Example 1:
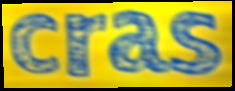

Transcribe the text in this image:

cras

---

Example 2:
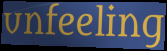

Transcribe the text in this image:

unfeeling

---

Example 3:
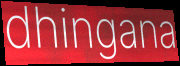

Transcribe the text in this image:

dhingana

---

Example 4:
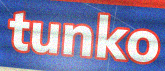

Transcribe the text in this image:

tunko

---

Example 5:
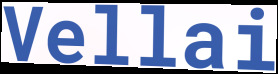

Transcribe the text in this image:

Vellai